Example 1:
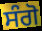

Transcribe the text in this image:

ਸੰਗੋ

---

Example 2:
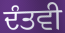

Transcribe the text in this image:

ਦੰਤਵੀ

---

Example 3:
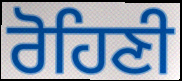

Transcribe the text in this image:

ਰੋਹਿਣੀ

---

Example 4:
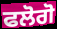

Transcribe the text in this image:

ਫਲੋਗੋ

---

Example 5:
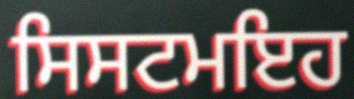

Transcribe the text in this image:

ਸਿਸਟਮਇਹ